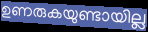
ഉണരുകയുണ്ടായില്ല